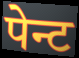
पेन्ट